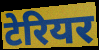
टेरियर